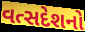
વત્સદેશનો